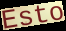
Esto